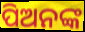
ପିଅନଙ୍କ